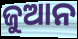
ଜୁଆନ